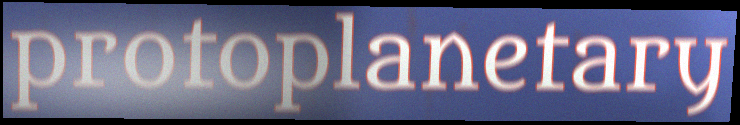
protoplanetary